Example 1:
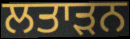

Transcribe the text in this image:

ਲਤਾੜਨ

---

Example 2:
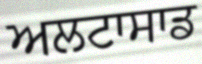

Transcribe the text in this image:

ਅਲਟਾਸਾਡ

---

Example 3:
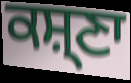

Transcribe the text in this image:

ਕਸ਼੍ਣਾ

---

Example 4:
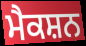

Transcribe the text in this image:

ਮੈਕਸ਼ਨ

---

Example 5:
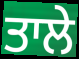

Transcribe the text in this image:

ਤਾਲੇ